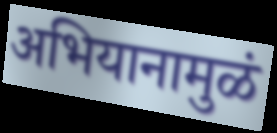
अभियानामुळं